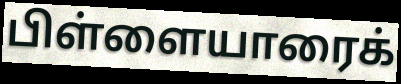
பிள்ளையாரைக்